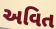
અવિત